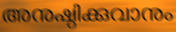
അനുഷ്ഠിക്കുവാനും